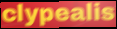
clypealis